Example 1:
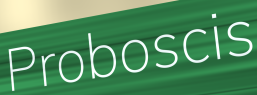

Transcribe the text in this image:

Proboscis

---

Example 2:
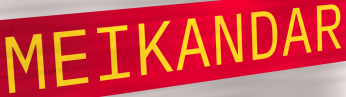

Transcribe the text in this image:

MEIKANDAR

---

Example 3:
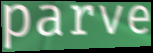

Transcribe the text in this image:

parve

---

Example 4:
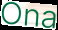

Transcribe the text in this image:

Ona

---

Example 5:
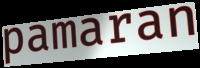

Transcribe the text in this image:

pamaran